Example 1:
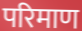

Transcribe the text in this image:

परिमाण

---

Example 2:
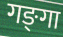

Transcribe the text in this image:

गङ्‍गा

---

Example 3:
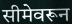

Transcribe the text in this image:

सीमेवरून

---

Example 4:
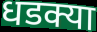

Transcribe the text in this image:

धडक्या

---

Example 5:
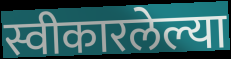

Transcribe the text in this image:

स्वीकारलेल्या